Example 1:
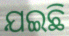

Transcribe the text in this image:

ଯଇଛି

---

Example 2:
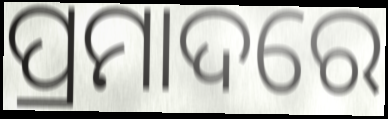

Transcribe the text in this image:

ପ୍ରମାଦରେ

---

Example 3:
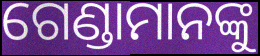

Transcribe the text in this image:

ଗେଣ୍ଡାମାନଙ୍କୁ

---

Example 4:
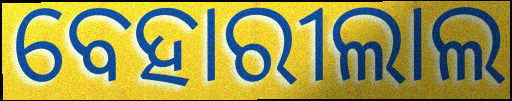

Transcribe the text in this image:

ବେହାରୀଲାଲ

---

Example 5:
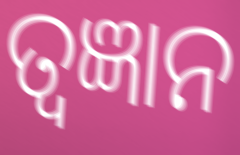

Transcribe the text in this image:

ତ୍ୱଜ୍ଞାନ